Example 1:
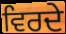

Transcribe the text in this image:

ਵਿਰਦੇ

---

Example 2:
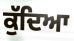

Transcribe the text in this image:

ਕੁੱਦਿਆ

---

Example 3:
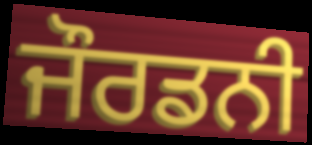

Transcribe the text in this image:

ਜੌਰਡਨੀ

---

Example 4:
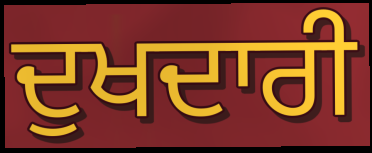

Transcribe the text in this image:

ਦੁਖਦਾਰੀ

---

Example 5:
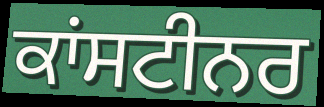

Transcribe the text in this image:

ਕਾਂਸਟੀਨਰ